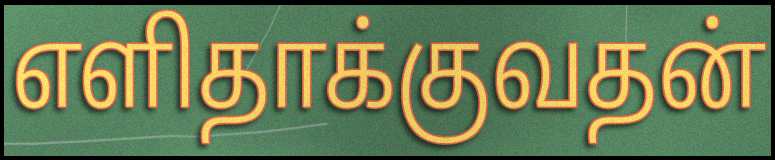
எளிதாக்குவதன்